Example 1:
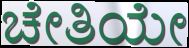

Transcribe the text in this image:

ಚೇತಿಯೇ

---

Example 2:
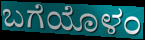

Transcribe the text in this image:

ಬಗೆಯೊಳಂ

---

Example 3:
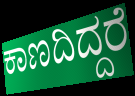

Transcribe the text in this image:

ಕಾಣದಿದ್ದರೆ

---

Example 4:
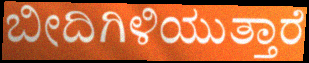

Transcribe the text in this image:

ಬೀದಿಗಿಳಿಯುತ್ತಾರೆ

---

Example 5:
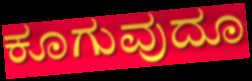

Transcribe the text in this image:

ಕೂಗುವುದೂ